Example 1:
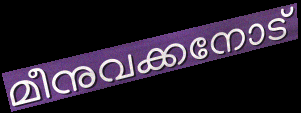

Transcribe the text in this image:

മീനുവക്കനോട്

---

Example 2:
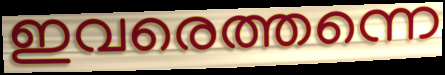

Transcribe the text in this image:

ഇവരെത്തന്നെ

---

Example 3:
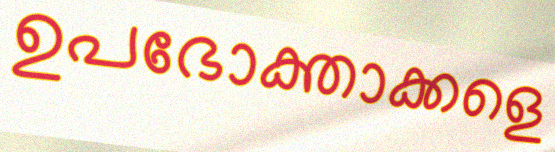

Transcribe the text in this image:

ഉപഭോക്താക്കളെ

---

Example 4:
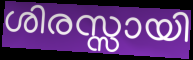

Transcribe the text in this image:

ശിരസ്സായി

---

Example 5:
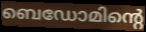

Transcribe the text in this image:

ബെഡോമിന്റെ